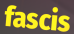
fascis